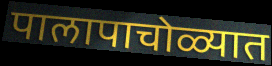
पालापाचोळ्यात